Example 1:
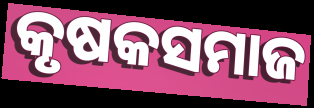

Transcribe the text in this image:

କୃଷକସମାଜ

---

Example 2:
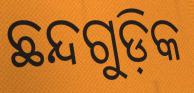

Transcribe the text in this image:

ଛନ୍ଦଗୁଡ଼ିକ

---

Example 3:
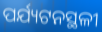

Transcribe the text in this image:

ପର୍ଯ୍ୟଟନସ୍ଥଳୀ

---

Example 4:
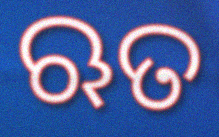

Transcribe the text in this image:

ଋତ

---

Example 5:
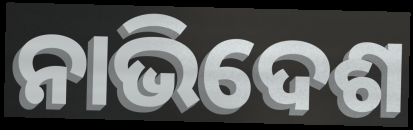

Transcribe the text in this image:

ନାଭିଦେଶ